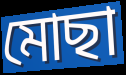
মোছা